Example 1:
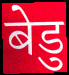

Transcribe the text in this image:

बेडु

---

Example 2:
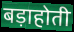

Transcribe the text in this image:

बड़ाहोती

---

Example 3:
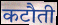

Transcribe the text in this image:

कटौती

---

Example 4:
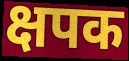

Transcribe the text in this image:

क्षपक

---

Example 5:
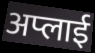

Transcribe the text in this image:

अप्‍लाई